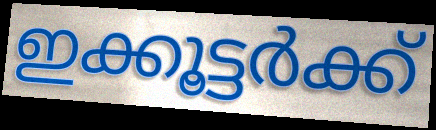
ഇക്കൂട്ടർക്ക്